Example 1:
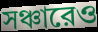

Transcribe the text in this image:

সঞ্চারেও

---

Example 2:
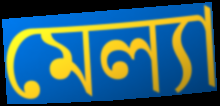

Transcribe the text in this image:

মেল্যা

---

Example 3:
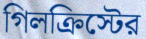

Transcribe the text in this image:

গিলক্রিস্টের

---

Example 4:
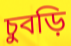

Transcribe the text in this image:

চুবড়ি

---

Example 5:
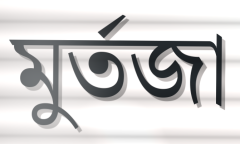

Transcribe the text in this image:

মুর্তজা